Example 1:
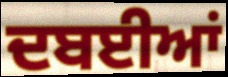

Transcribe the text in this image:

ਦਬਈਆਂ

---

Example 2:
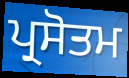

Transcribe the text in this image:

ਪ੍ਰਸੋਤਮ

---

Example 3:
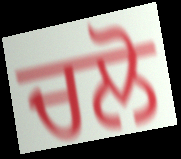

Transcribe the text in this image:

ਚਲੋ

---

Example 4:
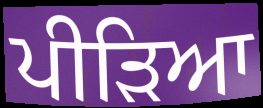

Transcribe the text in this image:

ਪੀੜਿਆ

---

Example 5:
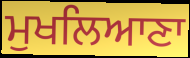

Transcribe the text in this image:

ਮੁਖਲਿਆਣਾ